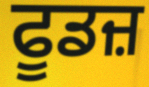
ਫੂਡਜ਼